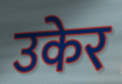
उकेर